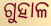
ଗୁହାଳ